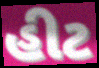
હીટ